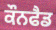
ਕੌਨਫੈਡ